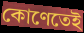
কোণেতেই